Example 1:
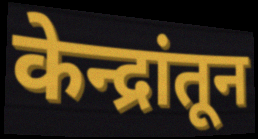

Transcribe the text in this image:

केन्द्रांतून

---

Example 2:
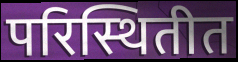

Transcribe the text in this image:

परिस्थितीत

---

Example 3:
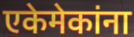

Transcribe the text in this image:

एकेमेकांना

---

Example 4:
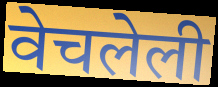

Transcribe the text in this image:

वेचलेली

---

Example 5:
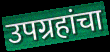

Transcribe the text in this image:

उपग्रहांचा